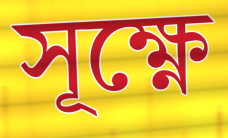
সূক্ষ্ণে